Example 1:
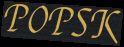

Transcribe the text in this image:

POPSK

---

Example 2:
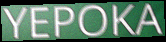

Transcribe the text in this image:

YEPOKA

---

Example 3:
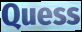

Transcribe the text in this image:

Quess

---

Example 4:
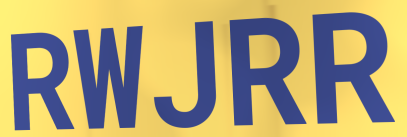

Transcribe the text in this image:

RWJRR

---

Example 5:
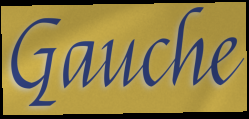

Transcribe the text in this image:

Gauche